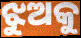
ଝୁଅକୁ